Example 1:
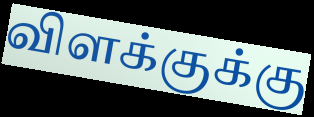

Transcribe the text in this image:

விளக்குக்கு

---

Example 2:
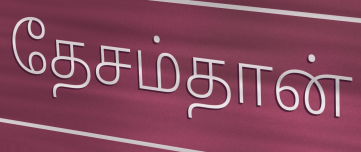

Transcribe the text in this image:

தேசம்தான்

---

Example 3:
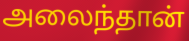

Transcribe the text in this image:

அலைந்தான்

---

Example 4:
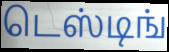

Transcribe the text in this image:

டெஸ்டிங்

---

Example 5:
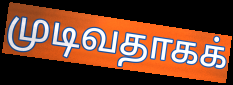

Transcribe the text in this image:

முடிவதாகக்